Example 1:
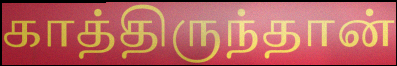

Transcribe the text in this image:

காத்திருந்தான்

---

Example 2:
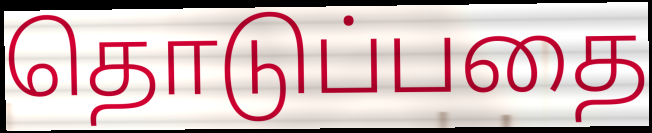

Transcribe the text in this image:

தொடுப்பதை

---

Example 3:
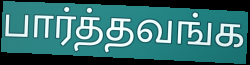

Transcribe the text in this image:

பார்த்தவங்க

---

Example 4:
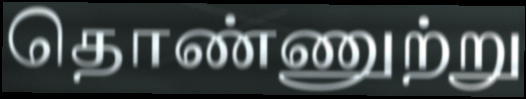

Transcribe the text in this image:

தொண்ணுற்று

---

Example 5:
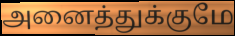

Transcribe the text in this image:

அனைத்துக்குமே